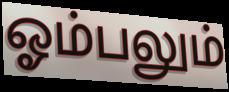
ஓம்பலும்